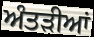
ਅੰਤੜੀਆਂ